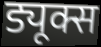
ड्यूक्स